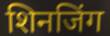
शिनजिंग